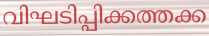
വിഘടിപ്പിക്കത്തക്ക